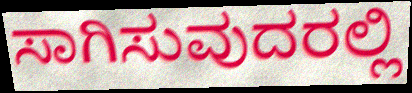
ಸಾಗಿಸುವುದರಲ್ಲಿ